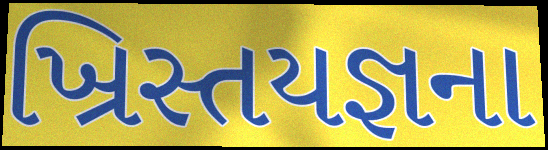
ખ્રિસ્તયજ્ઞના